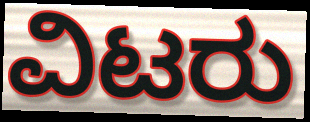
ವಿಟರು